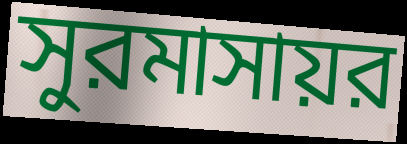
সুরমাসায়র